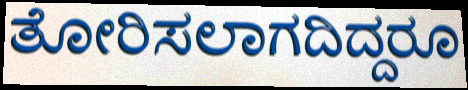
ತೋರಿಸಲಾಗದಿದ್ದರೂ